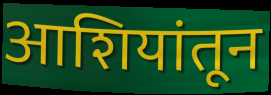
आशियांतून